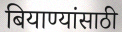
बियाण्यांसाठी